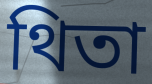
থিতা